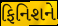
ફિનિશને